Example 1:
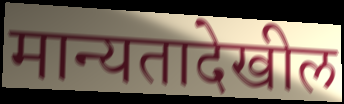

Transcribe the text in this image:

मान्यतादेखील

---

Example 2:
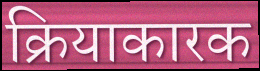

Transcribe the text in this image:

क्रियाकारक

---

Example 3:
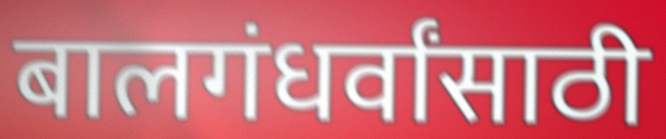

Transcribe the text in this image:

बालगंधर्वांसाठी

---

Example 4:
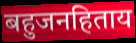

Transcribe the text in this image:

बहुजनहिताय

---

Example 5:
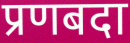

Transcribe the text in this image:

प्रणबदा